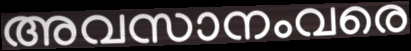
അവസാനംവരെ